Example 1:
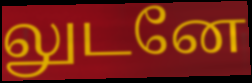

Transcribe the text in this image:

லுடனே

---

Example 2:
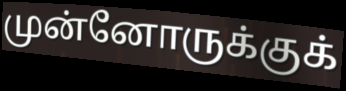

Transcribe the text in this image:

முன்னோருக்குக்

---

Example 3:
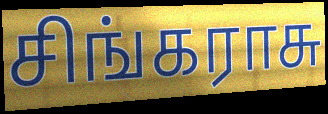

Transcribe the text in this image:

சிங்கராசு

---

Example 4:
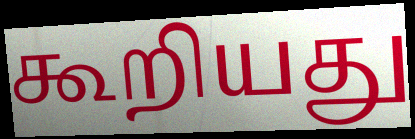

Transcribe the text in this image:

கூறியது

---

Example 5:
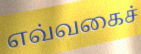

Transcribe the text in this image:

எவ்வகைச்